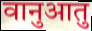
वानुआतु